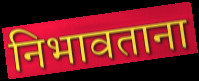
निभावताना